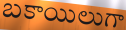
బకాయిలుగా